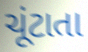
ચૂંટાતા